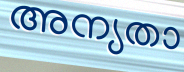
അന്യതാ